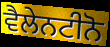
ਵੈਲੇਨਟੀਨੋ